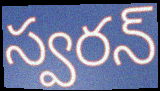
స్వరన్